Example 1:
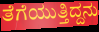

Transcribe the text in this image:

ತೆಗೆಯುತ್ತಿದ್ದನು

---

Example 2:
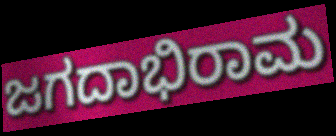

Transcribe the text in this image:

ಜಗದಾಭಿರಾಮ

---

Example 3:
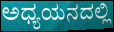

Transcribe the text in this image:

ಅಧ್ಯಯನದಲ್ಲಿ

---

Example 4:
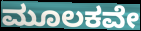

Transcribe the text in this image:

ಮೂಲಕವೇ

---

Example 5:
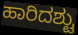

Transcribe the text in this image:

ಹಾರಿದಶ್ಟು